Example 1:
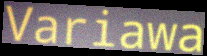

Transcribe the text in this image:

Variawa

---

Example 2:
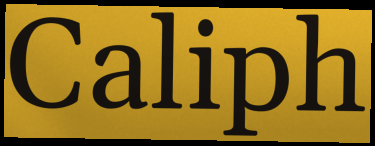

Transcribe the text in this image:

Caliph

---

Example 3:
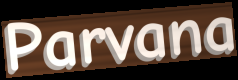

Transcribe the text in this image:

Parvana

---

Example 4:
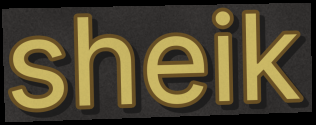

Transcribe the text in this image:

sheik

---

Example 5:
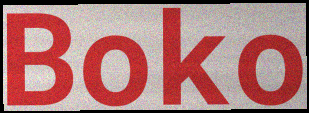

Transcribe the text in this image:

Boko